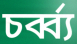
চর্ব্ব্য